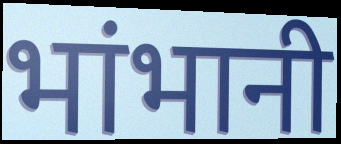
भांभानी